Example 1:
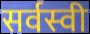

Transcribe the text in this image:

सर्वस्वी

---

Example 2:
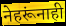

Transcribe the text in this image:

नेहरूंनाही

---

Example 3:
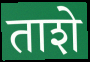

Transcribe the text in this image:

ताशे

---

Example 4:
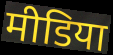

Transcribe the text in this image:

मीडिया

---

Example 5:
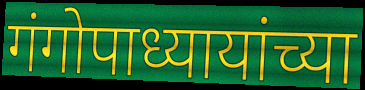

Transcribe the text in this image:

गंगोपाध्यायांच्या